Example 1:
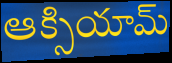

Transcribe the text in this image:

ఆక్సియామ్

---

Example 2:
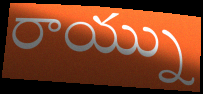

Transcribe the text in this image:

రాయ్ను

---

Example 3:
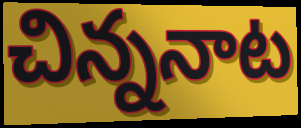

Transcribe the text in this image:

చిన్ననాట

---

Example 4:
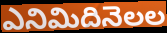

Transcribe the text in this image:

ఎనిమిదినెలల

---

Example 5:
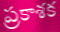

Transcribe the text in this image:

ప్రకాశక